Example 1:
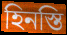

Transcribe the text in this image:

হিনস্তি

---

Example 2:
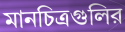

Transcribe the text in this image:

মানচিত্রগুলির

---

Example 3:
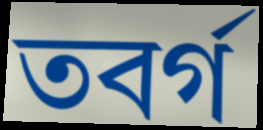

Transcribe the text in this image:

তবর্গ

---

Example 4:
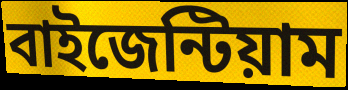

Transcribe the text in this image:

বাইজেন্টিয়াম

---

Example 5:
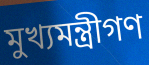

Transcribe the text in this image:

মুখ্যমন্ত্রীগণ